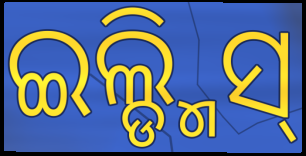
ଇଲ୍ଡ୍ମିସ୍